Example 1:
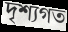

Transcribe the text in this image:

দৃশ্যগত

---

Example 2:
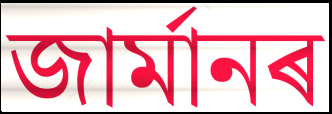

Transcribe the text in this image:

জাৰ্মানৰ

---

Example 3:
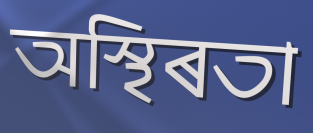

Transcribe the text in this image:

অস্থিৰতা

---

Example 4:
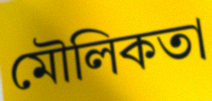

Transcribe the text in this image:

মৌলিকতা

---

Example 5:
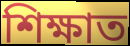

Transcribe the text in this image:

শিক্ষাত